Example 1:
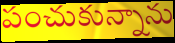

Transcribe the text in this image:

పంచుకున్నాను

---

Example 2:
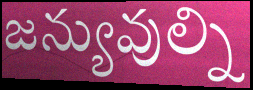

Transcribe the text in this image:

జన్యువుల్ని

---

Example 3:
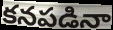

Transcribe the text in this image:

కనపడినా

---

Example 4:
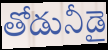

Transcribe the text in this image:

తోడునీడై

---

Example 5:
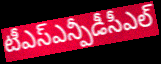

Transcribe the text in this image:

టీఎస్ఎన్పీడీసీఎల్